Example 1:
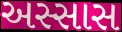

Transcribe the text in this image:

અસ્સાસ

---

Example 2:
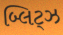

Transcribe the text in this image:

બ્લિટ્ઝ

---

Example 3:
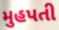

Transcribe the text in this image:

મુહપતી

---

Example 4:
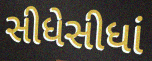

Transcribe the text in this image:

સીધેસીધાં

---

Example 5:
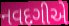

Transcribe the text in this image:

નવદગીએ